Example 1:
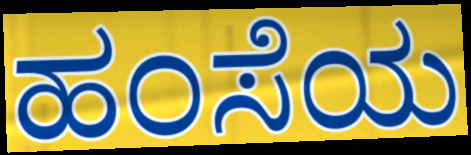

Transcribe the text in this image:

ಹಂಸೆಯ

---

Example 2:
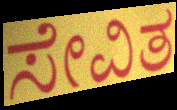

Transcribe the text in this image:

ಸೇವಿತ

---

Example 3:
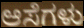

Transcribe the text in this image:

ಆಸೆಗಳು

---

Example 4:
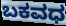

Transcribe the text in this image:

ಬಕವಧ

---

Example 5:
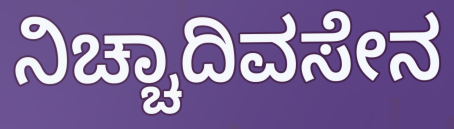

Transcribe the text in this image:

ನಿಚ್ಚಾದಿವಸೇನ